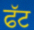
ਫੱਟ